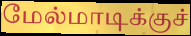
மேல்மாடிக்குச்